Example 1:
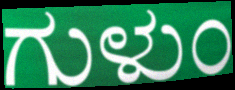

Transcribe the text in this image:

ಗುಳುಂ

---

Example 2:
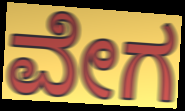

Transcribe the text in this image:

ವೇಗ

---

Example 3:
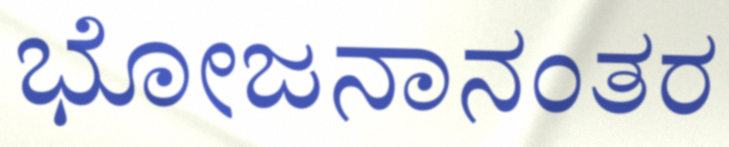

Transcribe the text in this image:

ಭೋಜನಾನಂತರ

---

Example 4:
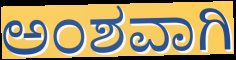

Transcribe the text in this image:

ಅಂಶವಾಗಿ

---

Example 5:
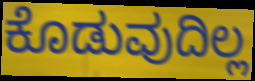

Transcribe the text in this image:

ಕೊಡುವುದಿಲ್ಲ